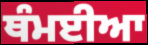
ਥੰਮਈਆ